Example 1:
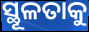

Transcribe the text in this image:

ସ୍ଥୂଳତାକୁ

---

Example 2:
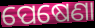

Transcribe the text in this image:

ପେଷେଣା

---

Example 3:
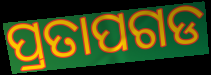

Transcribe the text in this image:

ପ୍ରତାପଗଡ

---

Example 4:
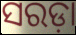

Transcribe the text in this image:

ସରଡ଼ା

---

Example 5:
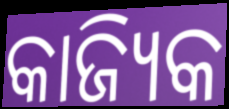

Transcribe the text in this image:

କାଜ୍ୟିକ